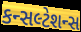
કન્સલ્ટેશન્સ